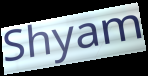
Shyam